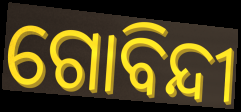
ଗୋବିନ୍ଦୀ